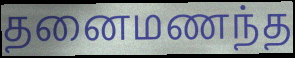
தனைமணந்த